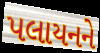
પલાયનને